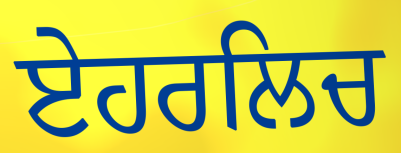
ਏਹਰਲਿਚ